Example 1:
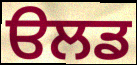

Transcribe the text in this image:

ੳਲਡ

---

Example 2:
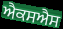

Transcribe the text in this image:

ਐਕਸਐਸ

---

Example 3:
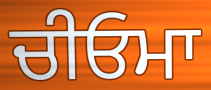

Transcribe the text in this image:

ਚੀਓਮਾ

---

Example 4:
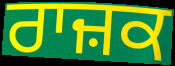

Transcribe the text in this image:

ਰਾਜ਼ਕ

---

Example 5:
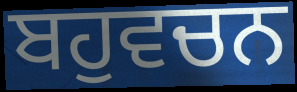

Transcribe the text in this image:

ਬਹੁਵਚਨ